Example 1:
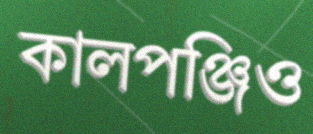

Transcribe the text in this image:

কালপঞ্জিও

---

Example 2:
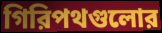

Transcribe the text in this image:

গিরিপথগুলোর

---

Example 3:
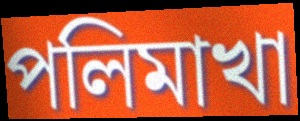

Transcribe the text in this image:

পলিমাখা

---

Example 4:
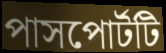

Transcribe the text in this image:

পাসপোর্টটি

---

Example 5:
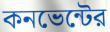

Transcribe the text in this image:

কনভেন্টের